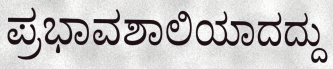
ಪ್ರಭಾವಶಾಲಿಯಾದದ್ದು